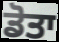
ਡੋਤਾ